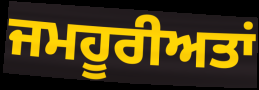
ਜਮਹੂਰੀਅਤਾਂ